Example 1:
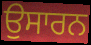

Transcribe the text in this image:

ਉਸਾਰਨ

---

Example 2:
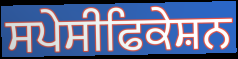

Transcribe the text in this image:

ਸਪੇਸੀਫਿਕੇਸ਼ਨ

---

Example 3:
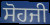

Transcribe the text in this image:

ਸੋਹਜੀ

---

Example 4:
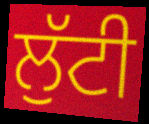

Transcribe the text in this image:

ਲੁੱਟੀ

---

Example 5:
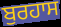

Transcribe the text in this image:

ਬੁਰਹਾਸ